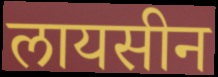
लायसीन